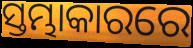
ସ୍ତମ୍ଭାକାରରେ